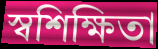
স্বশিক্ষিতা